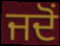
ਜਦੋਂ